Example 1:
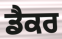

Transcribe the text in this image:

ਡੈਕਰ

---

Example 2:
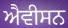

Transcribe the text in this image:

ਐਵੀਸਨ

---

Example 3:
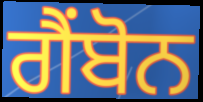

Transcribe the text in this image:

ਗੈਂਬੋਨ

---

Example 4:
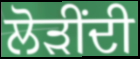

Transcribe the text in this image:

ਲੋੜੀਂਦੀ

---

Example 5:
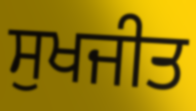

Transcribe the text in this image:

ਸੁਖਜੀਤ